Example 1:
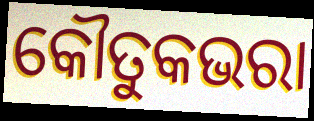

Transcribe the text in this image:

କୌତୁକଭରା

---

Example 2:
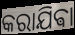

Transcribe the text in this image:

କରାଯିଵା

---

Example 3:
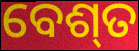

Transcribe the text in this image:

ବେଶ୍‍ତ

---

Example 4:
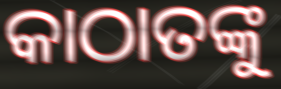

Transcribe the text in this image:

କାଠାତଙ୍କୁ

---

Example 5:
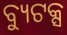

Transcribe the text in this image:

ବ୍ୟୁଟକ୍ସ